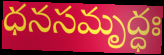
ధనసమృద్ధః